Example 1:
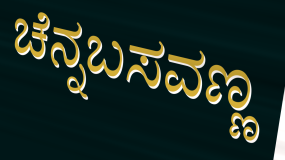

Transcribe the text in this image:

ಚೆನ್ನಬಸವಣ್ಣ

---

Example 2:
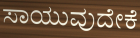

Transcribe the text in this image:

ಸಾಯುವುದೇಕೆ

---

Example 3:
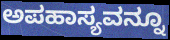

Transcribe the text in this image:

ಅಪಹಾಸ್ಯವನ್ನೂ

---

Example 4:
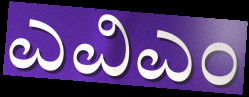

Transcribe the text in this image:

ಎವಿಎಂ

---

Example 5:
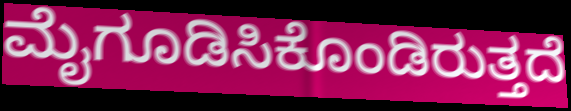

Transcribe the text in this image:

ಮೈಗೂಡಿಸಿಕೊಂಡಿರುತ್ತದೆ